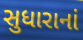
સુધારાનાં